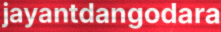
jayantdangodara